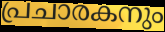
പ്രചാരകനും